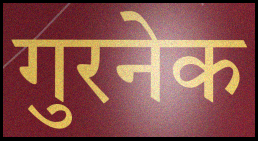
गुरनेक